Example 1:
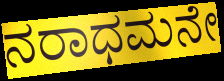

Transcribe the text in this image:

ನರಾಧಮನೇ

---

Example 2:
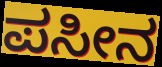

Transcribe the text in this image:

ಪಸೀನ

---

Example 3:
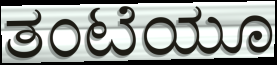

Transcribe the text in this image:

ತಂಟೆಯೂ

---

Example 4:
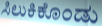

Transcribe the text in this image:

ಸಿಲುಕಿಕೊಂಡು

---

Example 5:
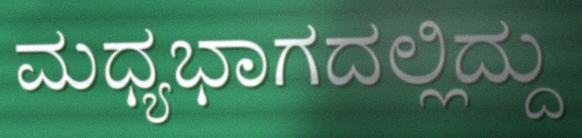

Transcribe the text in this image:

ಮಧ್ಯಭಾಗದಲ್ಲಿದ್ದು